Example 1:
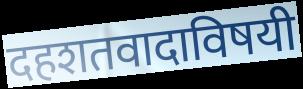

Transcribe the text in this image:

दहशतवादाविषयी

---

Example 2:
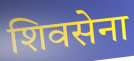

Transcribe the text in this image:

शिवसेना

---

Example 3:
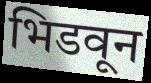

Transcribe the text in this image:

भिडवून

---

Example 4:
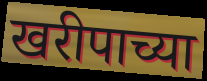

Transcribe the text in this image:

खरीपाच्या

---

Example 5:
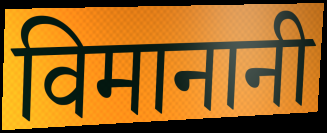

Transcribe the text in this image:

विमानानी